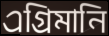
এগ্রিমানি